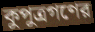
কুপুত্রগণের